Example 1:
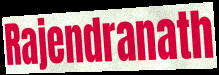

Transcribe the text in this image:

Rajendranath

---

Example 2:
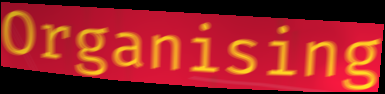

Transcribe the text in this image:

Organising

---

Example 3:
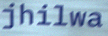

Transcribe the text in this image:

jhilwa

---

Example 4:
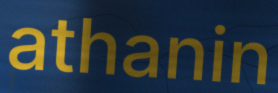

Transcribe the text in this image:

athanin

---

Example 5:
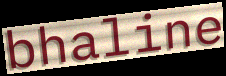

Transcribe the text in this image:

bhaline